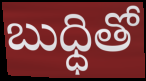
బుధ్ధితో